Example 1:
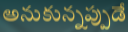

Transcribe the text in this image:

అనుకున్నప్పుడే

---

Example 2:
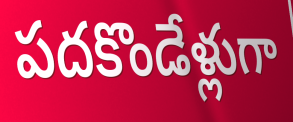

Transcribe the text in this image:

పదకొండేళ్లుగా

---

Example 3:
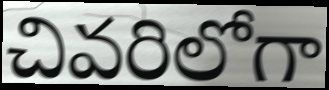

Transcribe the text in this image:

చివరిలోగా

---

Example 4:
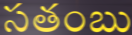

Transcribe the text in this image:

సతంబు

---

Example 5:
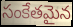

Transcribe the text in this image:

సంకేతమైన